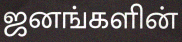
ஜனங்களின்